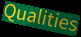
Qualities